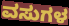
ವಸುಗಳ